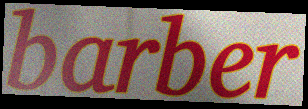
barber